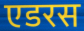
एडरस